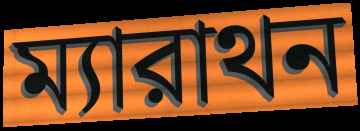
ম্যারাথন